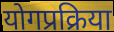
योगप्रक्रिया